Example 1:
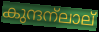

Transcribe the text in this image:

കുന്ദന്ലാല്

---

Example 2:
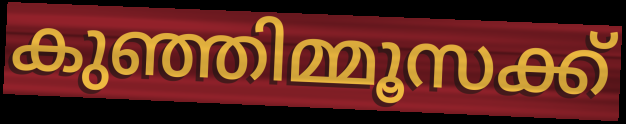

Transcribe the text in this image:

കുഞ്ഞിമ്മൂസക്ക്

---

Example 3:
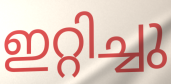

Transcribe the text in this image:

ഇറ്റിച്ചു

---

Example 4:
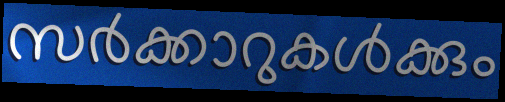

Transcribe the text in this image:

സർക്കാറുകൾക്കും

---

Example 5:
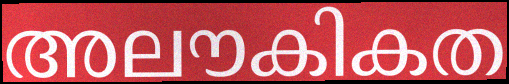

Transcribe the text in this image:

അലൗകികത